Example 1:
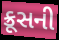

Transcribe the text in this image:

ક્રૂસની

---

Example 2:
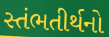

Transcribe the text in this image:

સ્તંભતીર્થનો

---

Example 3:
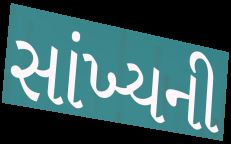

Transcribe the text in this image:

સાંખ્યની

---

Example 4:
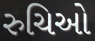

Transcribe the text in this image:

રુચિઓ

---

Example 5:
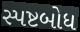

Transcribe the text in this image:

સ્પષ્ટબોધ